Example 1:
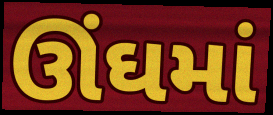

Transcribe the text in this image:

ઊંઘમાં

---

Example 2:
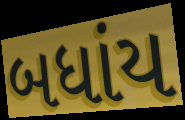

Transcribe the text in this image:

બધાંય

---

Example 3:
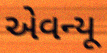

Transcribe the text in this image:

એવન્યૂ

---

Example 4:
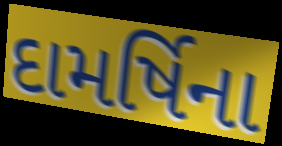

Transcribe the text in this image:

દામર્ષિના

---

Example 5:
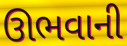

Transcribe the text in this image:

ઊભવાની